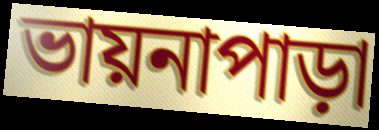
ভায়নাপাড়া